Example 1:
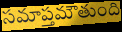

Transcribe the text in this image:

సమాప్తమౌతుంది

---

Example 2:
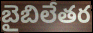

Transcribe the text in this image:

బైబిలేతర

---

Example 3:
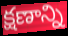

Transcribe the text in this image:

క్షణాన్ని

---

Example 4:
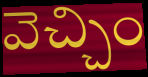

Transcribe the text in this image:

వెచ్చిం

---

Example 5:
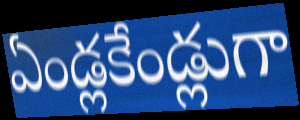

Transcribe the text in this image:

ఏండ్లకేండ్లుగా